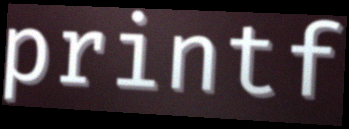
printf